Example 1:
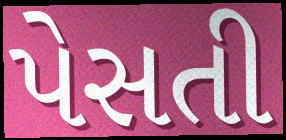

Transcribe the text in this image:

પેસતી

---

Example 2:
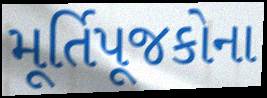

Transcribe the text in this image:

મૂર્તિપૂજકોના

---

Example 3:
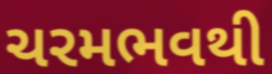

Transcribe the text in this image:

ચરમભવથી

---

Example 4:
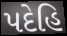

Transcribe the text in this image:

પદેહિ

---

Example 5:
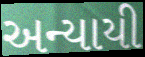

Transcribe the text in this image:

અન્યાયી